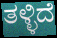
ತಳ್ಳಿದೆ